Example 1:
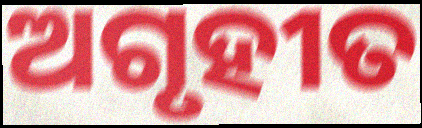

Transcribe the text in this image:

ଅଗୃହୀତ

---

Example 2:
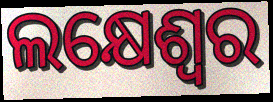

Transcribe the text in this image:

ଲକ୍ଷେଶ୍ଵର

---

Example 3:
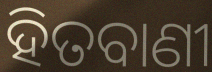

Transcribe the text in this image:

ହିତବାଣୀ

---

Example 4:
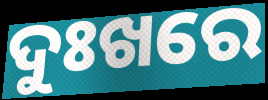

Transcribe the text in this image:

ଦୁଃଖରେ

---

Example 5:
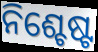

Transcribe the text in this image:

ନିଶ୍ଚେଷ୍ଟ